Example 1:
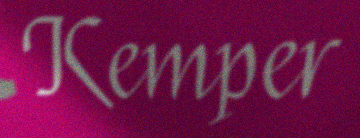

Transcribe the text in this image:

Kemper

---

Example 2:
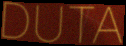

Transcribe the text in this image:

DUTA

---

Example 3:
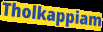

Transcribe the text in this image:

Tholkappiam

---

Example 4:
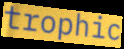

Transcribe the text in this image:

trophic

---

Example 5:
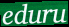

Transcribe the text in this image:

eduru